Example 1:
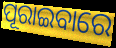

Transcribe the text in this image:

ପୂରାଇବାରେ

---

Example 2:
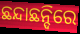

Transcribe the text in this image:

ଛନ୍ଦାଛନ୍ଦିରେ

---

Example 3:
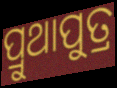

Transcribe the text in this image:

ପ୍ରୁଥାପୁତ୍ର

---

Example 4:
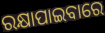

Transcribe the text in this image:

ରକ୍ଷାପାଇବାରେ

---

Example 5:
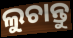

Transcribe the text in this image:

ଲୁଚାନ୍ତୁ